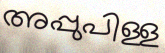
അപ്പുപിള്ള